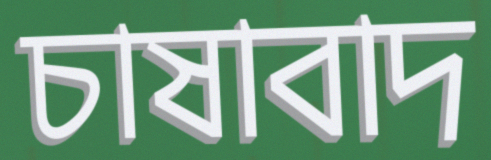
চাষাবাদ